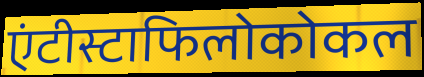
एंटीस्टाफिलोकोकल